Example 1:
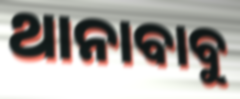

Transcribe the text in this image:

ଥାନାବାବୁ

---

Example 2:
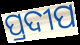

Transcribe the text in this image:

ପ୍ରଦୀପ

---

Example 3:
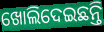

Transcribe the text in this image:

ଖୋଲିଦେଇଛନ୍ତି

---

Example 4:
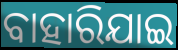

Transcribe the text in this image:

ବାହାରିଯାଇ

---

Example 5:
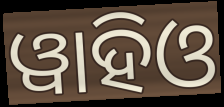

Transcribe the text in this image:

ୱାହିଓ